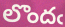
లొందఁ